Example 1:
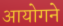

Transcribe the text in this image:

आयोगने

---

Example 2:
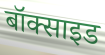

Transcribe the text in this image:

बॉक्साइड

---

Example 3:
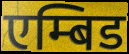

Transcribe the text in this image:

एम्बिड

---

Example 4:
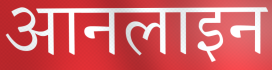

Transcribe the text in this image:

आनलाइन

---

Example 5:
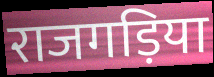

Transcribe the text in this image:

राजगड़िया